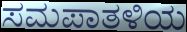
ಸಮಪಾತಳಿಯ